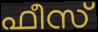
ഫീസ്